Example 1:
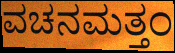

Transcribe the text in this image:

ವಚನಮತ್ತಂ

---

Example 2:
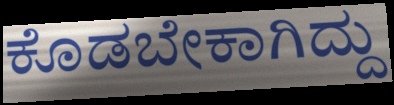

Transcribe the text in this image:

ಕೊಡಬೇಕಾಗಿದ್ದು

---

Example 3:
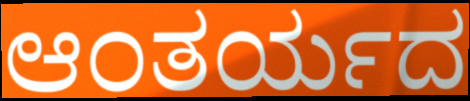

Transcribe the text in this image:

ಆಂತರ್ಯದ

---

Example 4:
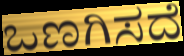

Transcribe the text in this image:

ಒಣಗಿಸದೆ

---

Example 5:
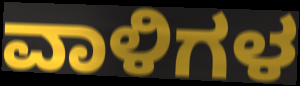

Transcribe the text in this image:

ವಾಳಿಗಳ